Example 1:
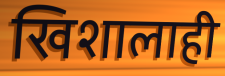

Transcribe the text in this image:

खिशालाही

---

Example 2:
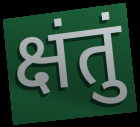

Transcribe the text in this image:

क्षंतुं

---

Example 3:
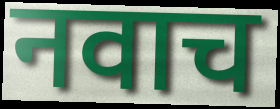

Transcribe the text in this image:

नवाच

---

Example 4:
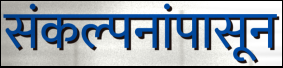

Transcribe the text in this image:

संकल्पनांपासून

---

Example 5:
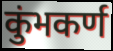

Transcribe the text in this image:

कुंभकर्ण